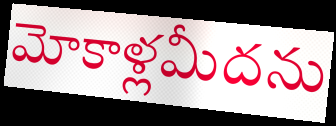
మోకాళ్లమీదను